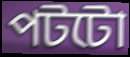
পটটো